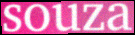
souza